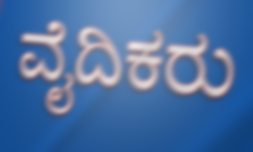
ವೈದಿಕರು